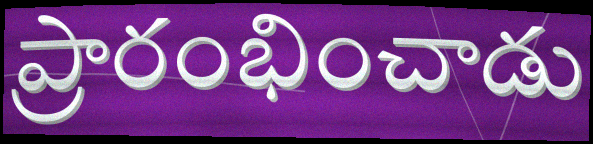
ప్రారంభించాడు